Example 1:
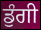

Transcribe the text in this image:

ਡੁੰਗੀ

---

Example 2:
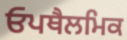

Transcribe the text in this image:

ਓਪਥੈਲਮਿਕ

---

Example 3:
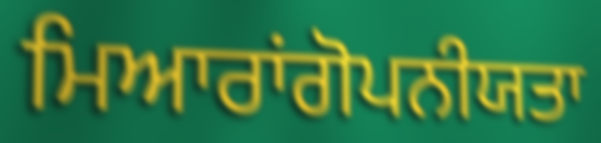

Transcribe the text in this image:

ਮਿਆਰਾਂਗੋਪਨੀਯਤਾ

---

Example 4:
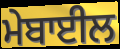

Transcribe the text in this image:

ਮੇਬਾਈਲ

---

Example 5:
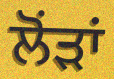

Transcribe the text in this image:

ਲੋਂੜਾਂ